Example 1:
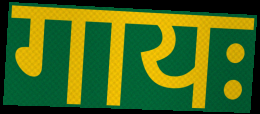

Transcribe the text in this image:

गायः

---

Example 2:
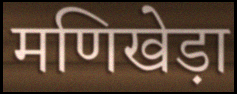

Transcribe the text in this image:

मणिखेड़ा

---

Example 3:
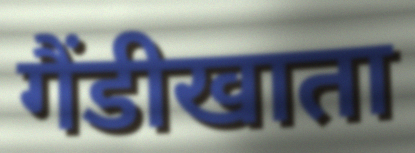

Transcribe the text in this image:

गैंडीखाता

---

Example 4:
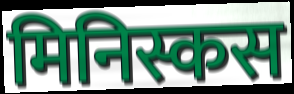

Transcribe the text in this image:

मिनिस्कस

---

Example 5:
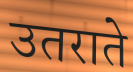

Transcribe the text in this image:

उतराते